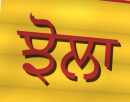
ਝੋਲਾ